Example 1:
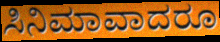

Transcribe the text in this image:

ಸಿನಿಮಾವಾದರೂ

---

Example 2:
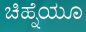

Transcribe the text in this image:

ಚಿಹ್ನೆಯೂ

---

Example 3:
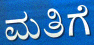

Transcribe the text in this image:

ಮತಿಗೆ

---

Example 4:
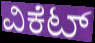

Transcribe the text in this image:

ವಿಕೆಟ್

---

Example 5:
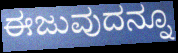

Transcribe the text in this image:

ಈಜುವುದನ್ನೂ